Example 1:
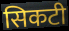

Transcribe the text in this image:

सिकटी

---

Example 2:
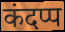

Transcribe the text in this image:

कंदप्प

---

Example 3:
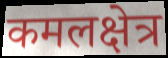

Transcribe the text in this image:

कमलक्षेत्र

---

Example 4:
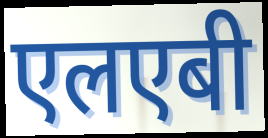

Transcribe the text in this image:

एलएबी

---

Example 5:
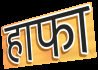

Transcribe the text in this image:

हाफा